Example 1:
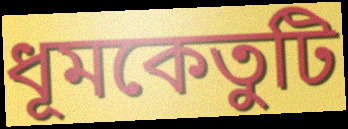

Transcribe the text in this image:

ধূমকেতুটি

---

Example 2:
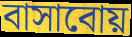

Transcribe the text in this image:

বাসাবোয়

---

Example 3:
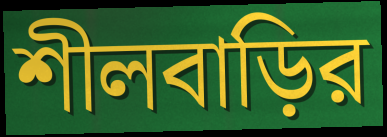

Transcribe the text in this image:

শীলবাড়ির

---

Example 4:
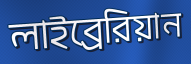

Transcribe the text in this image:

লাইব্রেরিয়ান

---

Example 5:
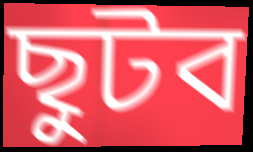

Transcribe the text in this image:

ছুটব